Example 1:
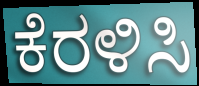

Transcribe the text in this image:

ಕೆರಳಿಸಿ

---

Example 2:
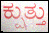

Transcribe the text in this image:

ಕ್ಷುತ್ತು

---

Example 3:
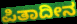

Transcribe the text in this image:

ಪಿತಾದೀನ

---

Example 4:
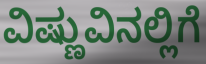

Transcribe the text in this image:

ವಿಷ್ಣುವಿನಲ್ಲಿಗೆ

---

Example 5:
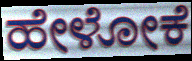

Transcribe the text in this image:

ಹೇಳೋಕೆ